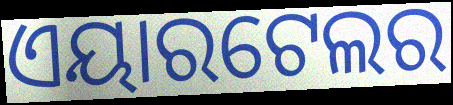
ଏୟାରଟେଲର